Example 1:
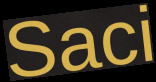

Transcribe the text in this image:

Saci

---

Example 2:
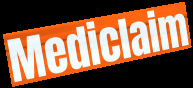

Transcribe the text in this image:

Mediclaim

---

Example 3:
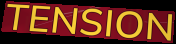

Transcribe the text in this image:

TENSION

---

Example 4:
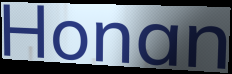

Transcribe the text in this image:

Honan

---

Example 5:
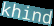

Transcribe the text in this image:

khind